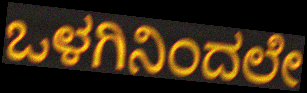
ಒಳಗಿನಿಂದಲೇ